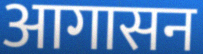
आगासन